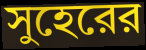
সুহেরের